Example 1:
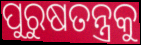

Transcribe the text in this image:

ପୁରୁଷତନ୍ତ୍ରକୁ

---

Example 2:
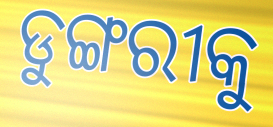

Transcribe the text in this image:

ଡୁଙ୍ଗରୀକୁ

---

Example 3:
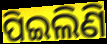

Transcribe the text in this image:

ପିଇଲିଣି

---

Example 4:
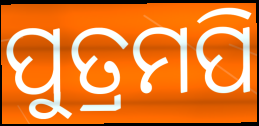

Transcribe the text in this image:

ପୁତ୍ରମପି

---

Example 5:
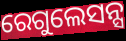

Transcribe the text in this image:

ରେଗୁଲେସନ୍ସ